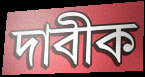
দাবীক